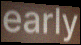
early